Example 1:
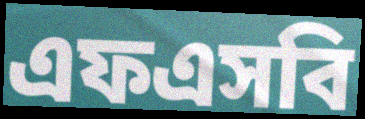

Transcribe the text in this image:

এফএসবি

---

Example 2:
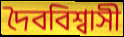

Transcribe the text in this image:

দৈববিশ্বাসী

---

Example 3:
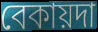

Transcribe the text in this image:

বেকায়দা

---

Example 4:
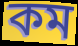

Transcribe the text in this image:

কম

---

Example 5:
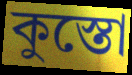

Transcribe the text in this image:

কুস্তো